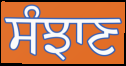
ਸੰਝਾਣ